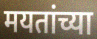
मयतांच्या